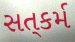
સત્‌કર્મ